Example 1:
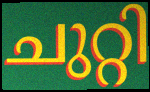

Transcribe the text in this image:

ചുറ്റി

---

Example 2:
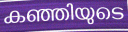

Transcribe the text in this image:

കഞ്ഞിയുടെ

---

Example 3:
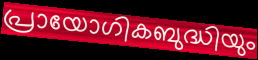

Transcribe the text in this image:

പ്രായോഗികബുദ്ധിയും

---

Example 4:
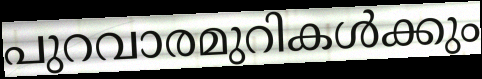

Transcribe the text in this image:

പുറവാരമുറികൾക്കും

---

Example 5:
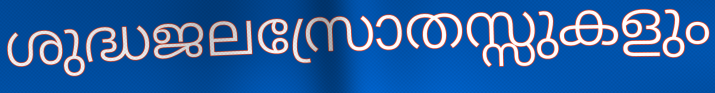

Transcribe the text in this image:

ശുദ്ധജലസ്രോതസ്സുകളും